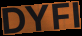
DYFI